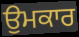
ਉਮਕਾਰ